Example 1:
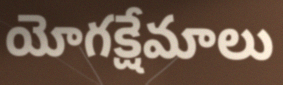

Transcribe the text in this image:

యోగక్షేమాలు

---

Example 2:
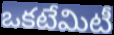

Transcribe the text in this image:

ఒకటేమిటీ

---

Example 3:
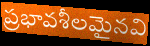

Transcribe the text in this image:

ప్రభావశీలమైనవి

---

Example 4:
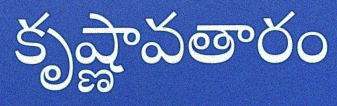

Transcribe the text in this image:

కృష్ణావతారం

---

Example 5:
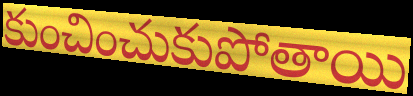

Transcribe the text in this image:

కుంచించుకుపోతాయి